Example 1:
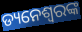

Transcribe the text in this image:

ଡ୍ୟନେଶ୍ୱରଙ୍କ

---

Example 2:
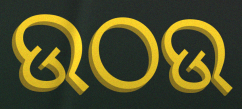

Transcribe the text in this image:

ଉଠଉ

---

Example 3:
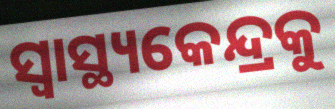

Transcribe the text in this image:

ସ୍ୱାସ୍ଥ୍ୟକେନ୍ଦ୍ରକୁ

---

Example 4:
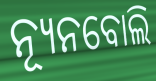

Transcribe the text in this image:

ନ୍ୟୂନବୋଲି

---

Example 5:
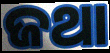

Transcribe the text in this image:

ଜଥା